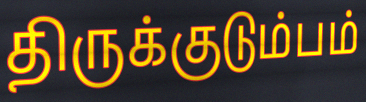
திருக்குடும்பம்